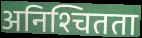
अनिश्चितता